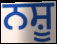
ਨਸ਼ੂ